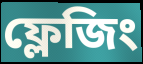
ফ্লেজিং